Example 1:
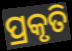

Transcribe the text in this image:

ପ୍ରକୃତି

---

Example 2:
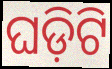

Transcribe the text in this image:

ଘଡ଼ିଟି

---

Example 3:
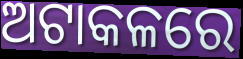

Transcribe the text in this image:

ଅଟାକଳରେ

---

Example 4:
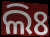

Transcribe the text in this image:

ଲିଃ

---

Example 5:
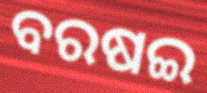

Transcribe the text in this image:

ବରଷଇ